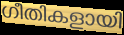
ഗീതികളായി